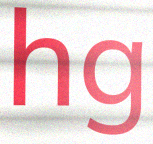
hg